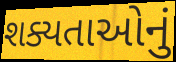
શક્યતાઓનું